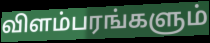
விளம்பரங்களும்